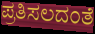
ಪ್ರತಿಸಲದಂತೆ